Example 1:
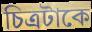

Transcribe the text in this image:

চিত্রটাকে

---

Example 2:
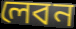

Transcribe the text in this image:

লেবন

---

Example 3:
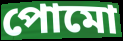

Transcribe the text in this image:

পোমো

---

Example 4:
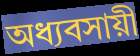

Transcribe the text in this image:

অধ্যবসায়ী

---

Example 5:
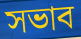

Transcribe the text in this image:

সভাব